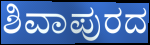
ಶಿವಾಪುರದ